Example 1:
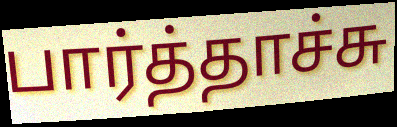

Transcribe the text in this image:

பார்த்தாச்சு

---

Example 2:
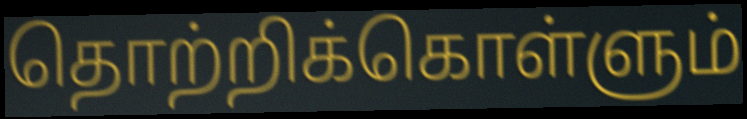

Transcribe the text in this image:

தொற்றிக்கொள்ளும்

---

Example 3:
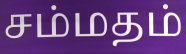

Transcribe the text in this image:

சம்மதம்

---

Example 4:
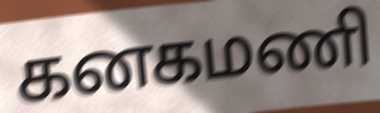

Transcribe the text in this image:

கனகமணி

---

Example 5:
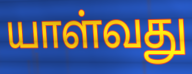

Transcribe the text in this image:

யாள்வது